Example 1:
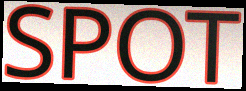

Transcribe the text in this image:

SPOT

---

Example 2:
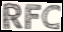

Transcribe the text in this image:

RFC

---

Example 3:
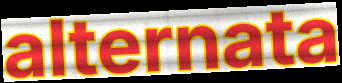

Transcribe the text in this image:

alternata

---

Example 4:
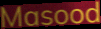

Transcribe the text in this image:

Masood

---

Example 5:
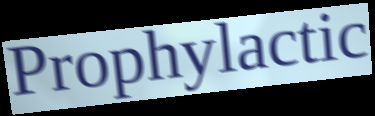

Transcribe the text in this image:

Prophylactic